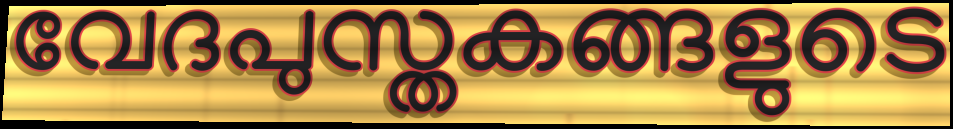
വേദപുസ്തകങ്ങളുടെ